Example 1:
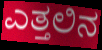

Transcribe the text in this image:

ಎತ್ತಲಿನ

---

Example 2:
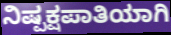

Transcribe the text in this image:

ನಿಷ್ಪಕ್ಷಪಾತಿಯಾಗಿ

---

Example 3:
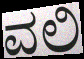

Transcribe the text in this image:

ವಲಿ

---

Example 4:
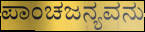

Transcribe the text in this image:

ಪಾಂಚಜನ್ಯವನು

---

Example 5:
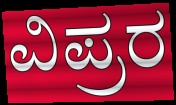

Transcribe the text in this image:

ವಿಪ್ರರ